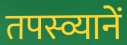
तपस्व्यानें